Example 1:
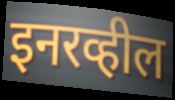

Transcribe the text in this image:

इनरव्हील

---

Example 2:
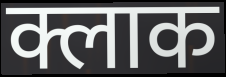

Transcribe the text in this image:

क्लाक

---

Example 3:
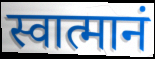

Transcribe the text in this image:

स्वात्मानं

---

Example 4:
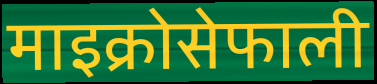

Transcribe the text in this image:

माइक्रोसेफाली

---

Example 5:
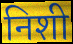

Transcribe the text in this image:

निशी